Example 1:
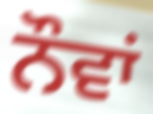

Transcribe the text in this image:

ਨੌਵਾਂ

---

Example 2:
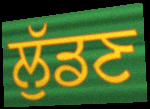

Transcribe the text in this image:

ਲੁੱਡਣ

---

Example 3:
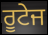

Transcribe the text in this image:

ਰੂਟੇਜ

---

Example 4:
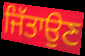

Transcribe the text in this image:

ਜਿੱਤਾਉਣ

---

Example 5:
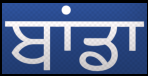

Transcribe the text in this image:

ਬਾਂਡਾ